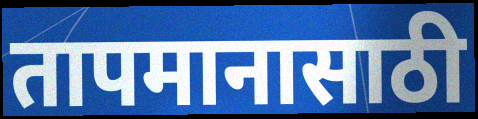
तापमानासाठी